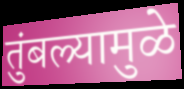
तुंबल्यामुळे